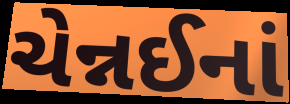
ચેન્નઈનાં